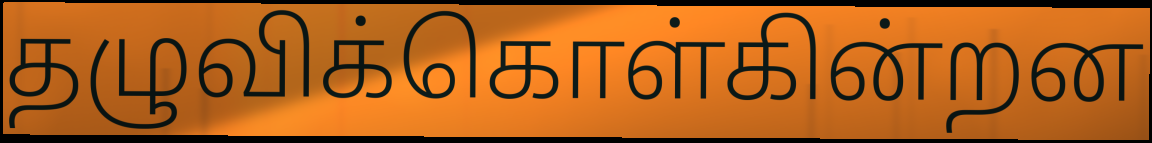
தழுவிக்கொள்கின்றன